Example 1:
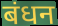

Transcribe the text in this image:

बंधन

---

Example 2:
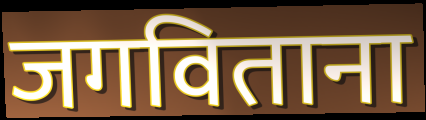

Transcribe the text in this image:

जगविताना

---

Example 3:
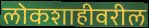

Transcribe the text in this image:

लोकशाहीवरील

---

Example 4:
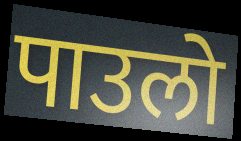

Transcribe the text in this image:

पाउलो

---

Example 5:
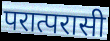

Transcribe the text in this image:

परात्परासी